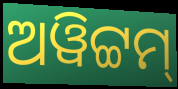
ଅୱିଟ୍ଟମ୍